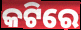
କଟିରେ